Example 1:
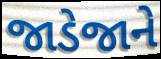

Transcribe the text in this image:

જાડેજાને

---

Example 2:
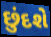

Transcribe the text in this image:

છુંદશે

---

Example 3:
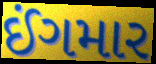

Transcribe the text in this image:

ઈંગમાર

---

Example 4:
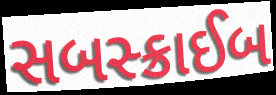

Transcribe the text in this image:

સબસ્ક્રાઈબ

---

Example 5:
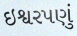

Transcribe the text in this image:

ઇશ્વરપણું